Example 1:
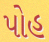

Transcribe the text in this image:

પોહ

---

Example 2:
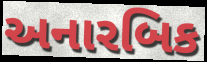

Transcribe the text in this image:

અનારબિક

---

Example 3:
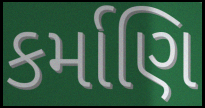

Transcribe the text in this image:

કર્માણિ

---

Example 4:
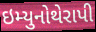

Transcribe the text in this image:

ઇમ્યુનોથેરાપી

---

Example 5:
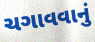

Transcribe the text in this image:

ચગાવવાનું